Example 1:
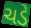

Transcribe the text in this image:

ચડે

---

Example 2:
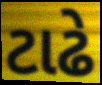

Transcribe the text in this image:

ટાઢે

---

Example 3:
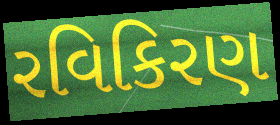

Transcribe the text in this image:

રવિકિરણ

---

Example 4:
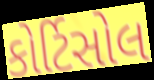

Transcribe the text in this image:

કોર્ટિસોલ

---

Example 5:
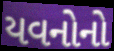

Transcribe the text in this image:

યવનોનો